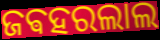
ଜଵହରଲାଲ